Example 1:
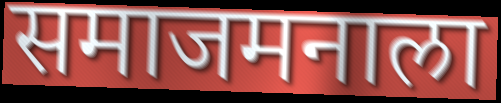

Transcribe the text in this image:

समाजमनाला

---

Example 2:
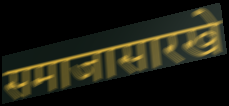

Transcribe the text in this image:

समाजासारखे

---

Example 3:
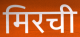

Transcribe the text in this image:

मिरची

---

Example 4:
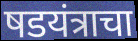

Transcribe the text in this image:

षडयंत्राचा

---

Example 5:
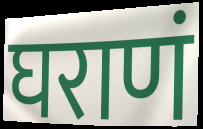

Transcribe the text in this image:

घराणं